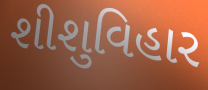
શીશુવિહાર